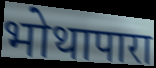
भोथापारा